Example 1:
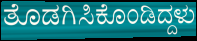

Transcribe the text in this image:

ತೊಡಗಿಸಿಕೊಂಡಿದ್ದಳು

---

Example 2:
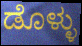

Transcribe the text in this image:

ಡೊಳ್ಳು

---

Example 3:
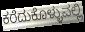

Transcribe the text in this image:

ಕರೆದುಕೊಳ್ಳುವಲ್ಲಿ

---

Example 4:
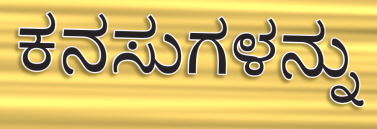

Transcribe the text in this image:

ಕನಸುಗಳನ್ನು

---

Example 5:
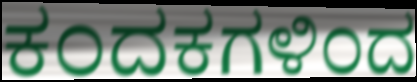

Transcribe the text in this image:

ಕಂದಕಗಳಿಂದ